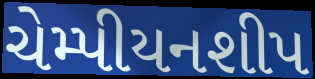
ચેમ્પીયનશીપ